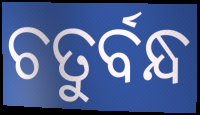
ଚତୁର୍ବନ୍ଧ